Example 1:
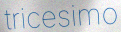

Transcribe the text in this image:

tricesimo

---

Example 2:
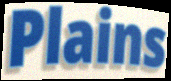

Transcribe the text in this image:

Plains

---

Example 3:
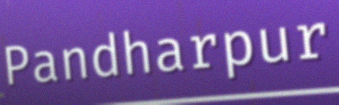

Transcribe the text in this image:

Pandharpur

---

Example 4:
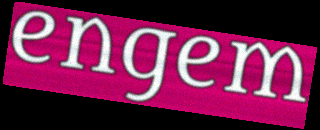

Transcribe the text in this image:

engem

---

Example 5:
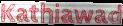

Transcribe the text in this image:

Kathiawad